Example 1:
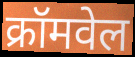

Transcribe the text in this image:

क्रॉमवेल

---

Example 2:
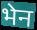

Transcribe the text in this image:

भेन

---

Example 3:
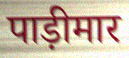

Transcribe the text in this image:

पाड़ीमार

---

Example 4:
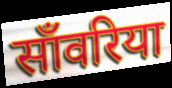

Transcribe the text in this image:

साँवरिया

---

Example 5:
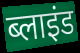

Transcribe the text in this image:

ब्लाइंड